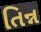
તિન્ન